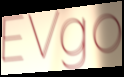
EVgo